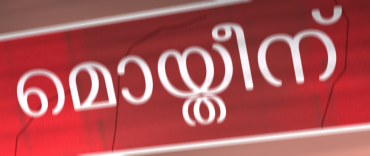
മൊയ്തീന്